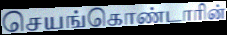
செயங்கொண்டாரின்